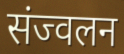
संज्वलन